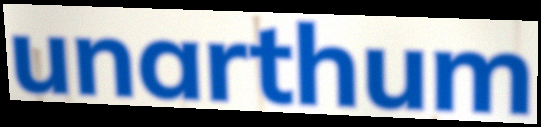
unarthum